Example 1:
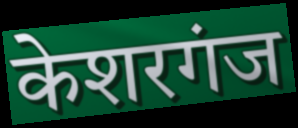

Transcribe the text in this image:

केशरगंज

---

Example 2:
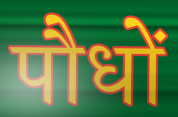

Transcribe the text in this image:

पौधों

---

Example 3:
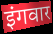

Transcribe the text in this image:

इंगवार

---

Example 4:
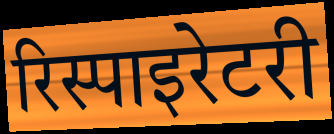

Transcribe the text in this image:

रिस्पाइरेटरी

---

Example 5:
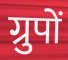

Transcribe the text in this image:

ग्रुपों